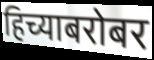
हिच्याबरोबर